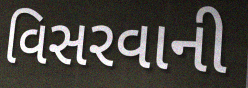
વિસરવાની